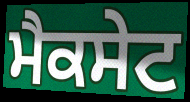
ਮੈਕਸੇਟ